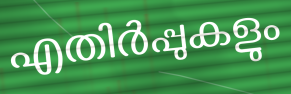
എതിർപ്പുകളും